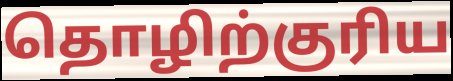
தொழிற்குரிய